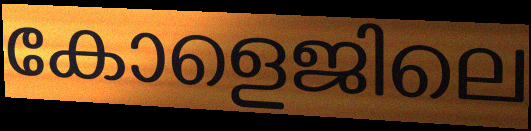
കോളെജിലെ